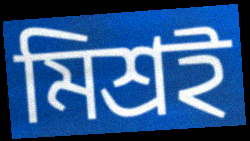
মিশ্ৰই